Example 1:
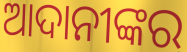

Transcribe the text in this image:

ଆଦାନୀଙ୍କର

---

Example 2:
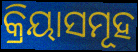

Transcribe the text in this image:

କ୍ରିୟାସମୂହ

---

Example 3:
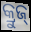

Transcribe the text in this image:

କ୍ରୁଜ୍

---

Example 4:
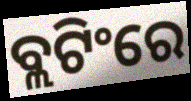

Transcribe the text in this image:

ବ୍ଲଟିଂରେ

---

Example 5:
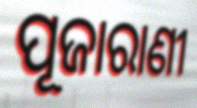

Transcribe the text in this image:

ପୂଜାରାଣୀ